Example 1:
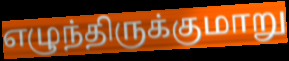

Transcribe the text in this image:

எழுந்திருக்குமாறு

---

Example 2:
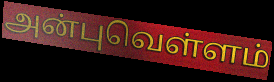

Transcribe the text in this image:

அன்புவெள்ளம்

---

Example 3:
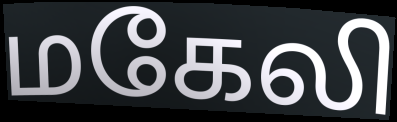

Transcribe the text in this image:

மகேலி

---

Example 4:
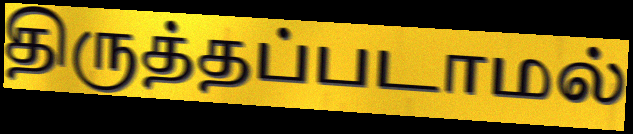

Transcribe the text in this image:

திருத்தப்படாமல்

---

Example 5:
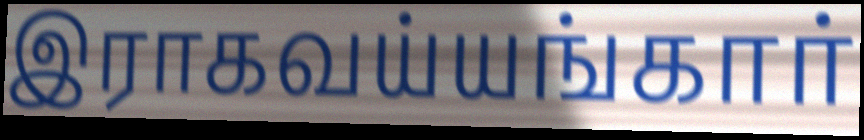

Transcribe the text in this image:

இராகவய்யங்கார்